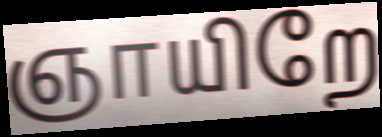
ஞாயிறே